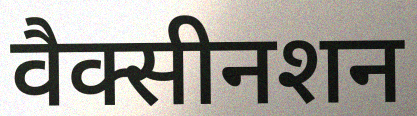
वैक्सीनशन